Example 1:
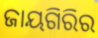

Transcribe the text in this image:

ଜାୟଗିରିର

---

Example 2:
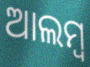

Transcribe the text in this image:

ଆଲମ୍ବ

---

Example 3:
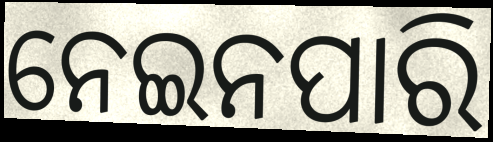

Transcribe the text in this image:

ନେଇନପାରି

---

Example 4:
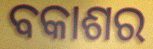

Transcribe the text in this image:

ବକାଶର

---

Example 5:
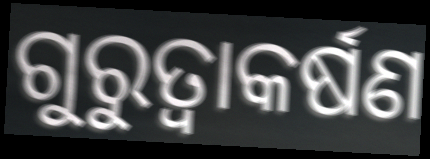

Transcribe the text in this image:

ଗୁରୁତ୍ଵାକର୍ଷଣ